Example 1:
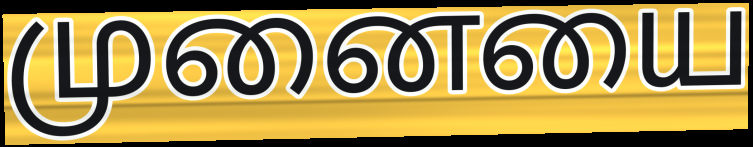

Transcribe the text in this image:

முனையை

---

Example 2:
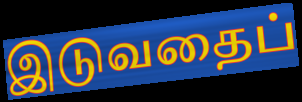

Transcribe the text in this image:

இடுவதைப்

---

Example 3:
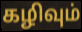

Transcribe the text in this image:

கழிவும்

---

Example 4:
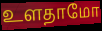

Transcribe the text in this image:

உளதாமோ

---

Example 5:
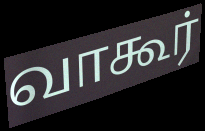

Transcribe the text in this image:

வாகூர்